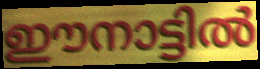
ഈനാട്ടിൽ